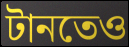
টানতেও